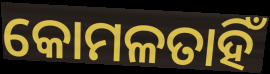
କୋମଳତାହିଁ